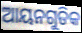
ଆୟନଗୁଡିକ